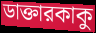
ডাক্তারকাকু